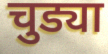
चुड्या